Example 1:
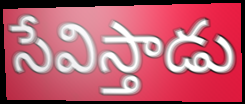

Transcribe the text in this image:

సేవిస్తాడు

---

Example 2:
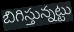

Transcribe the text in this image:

బిగిస్తున్నట్టు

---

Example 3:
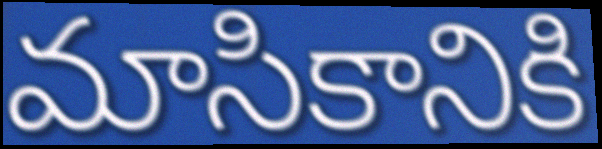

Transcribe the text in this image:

మాసికానికి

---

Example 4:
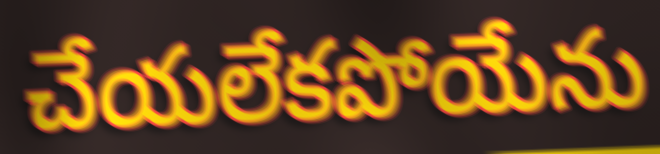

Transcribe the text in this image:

చేయలేకపోయేను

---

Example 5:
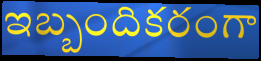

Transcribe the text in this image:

ఇబ్బందికరంగా